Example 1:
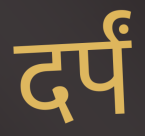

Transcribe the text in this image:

दर्पं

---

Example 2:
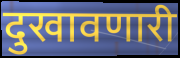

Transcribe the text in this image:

दुखावणारी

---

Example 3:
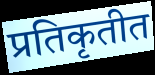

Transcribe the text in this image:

प्रतिकृतीत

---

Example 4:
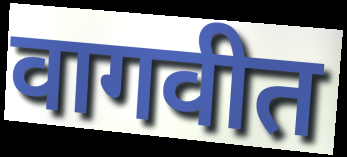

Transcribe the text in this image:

वागवीत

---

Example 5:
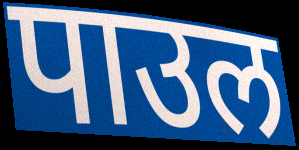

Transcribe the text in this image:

पाउल